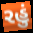
રહું